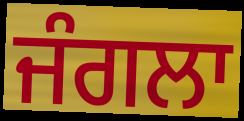
ਜੰਗਲਾ